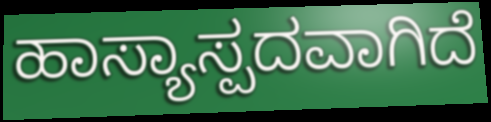
ಹಾಸ್ಯಾಸ್ಪದವಾಗಿದೆ